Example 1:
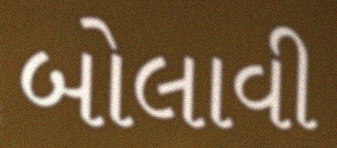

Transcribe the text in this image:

બોલાવી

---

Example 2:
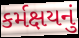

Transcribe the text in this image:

કર્મક્ષયનું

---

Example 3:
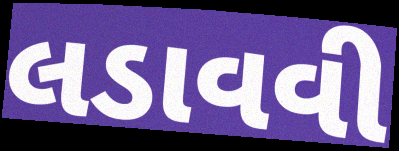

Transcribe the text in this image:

લડાવવી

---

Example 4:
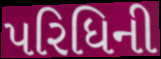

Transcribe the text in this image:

પરિધિની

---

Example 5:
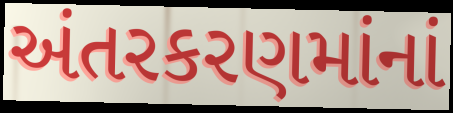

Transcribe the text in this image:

અંતરકરણમાંનાં